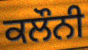
ਕਲੌਨੀ